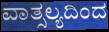
ವಾತ್ಸಲ್ಯದಿಂದ